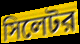
সিলেটর